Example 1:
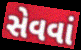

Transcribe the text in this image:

સેવવાં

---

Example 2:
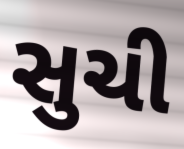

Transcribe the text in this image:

સુચી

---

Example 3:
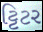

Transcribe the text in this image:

ટ્ટિટર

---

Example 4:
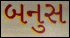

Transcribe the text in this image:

બનુસ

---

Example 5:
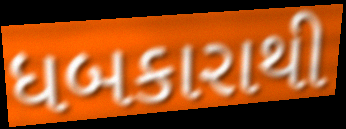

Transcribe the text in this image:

ધબકારાથી